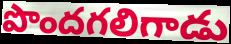
పొందగలిగాడు